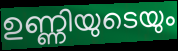
ഉണ്ണിയുടെയും